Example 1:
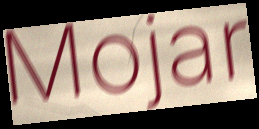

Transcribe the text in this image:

Mojar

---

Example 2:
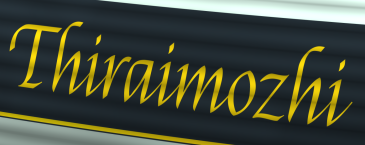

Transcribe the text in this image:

Thiraimozhi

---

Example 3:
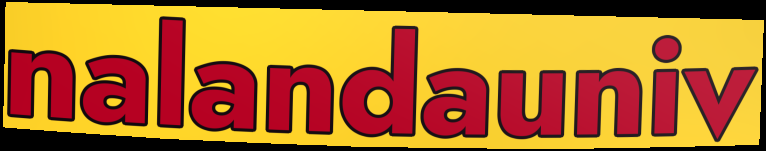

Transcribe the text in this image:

nalandauniv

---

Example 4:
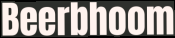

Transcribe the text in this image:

Beerbhoom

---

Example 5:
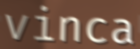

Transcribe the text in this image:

vinca